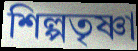
শিল্পতৃষ্ণা